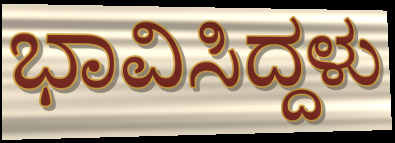
ಭಾವಿಸಿದ್ದಳು